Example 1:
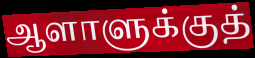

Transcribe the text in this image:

ஆளாளுக்குத்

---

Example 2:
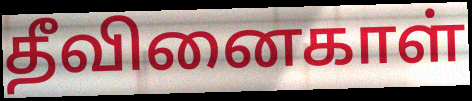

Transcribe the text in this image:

தீவினைகாள்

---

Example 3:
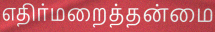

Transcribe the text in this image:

எதிர்மறைத்தன்மை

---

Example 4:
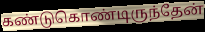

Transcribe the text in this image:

கண்டுகொண்டிருந்தேன்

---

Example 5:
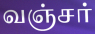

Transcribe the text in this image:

வஞ்சர்